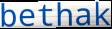
bethak